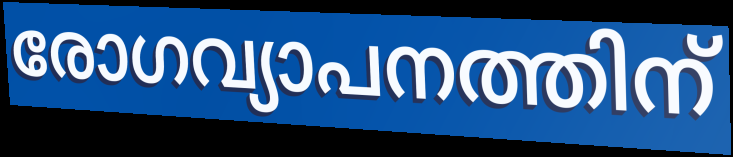
രോഗവ്യാപനത്തിന്